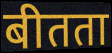
बीतता